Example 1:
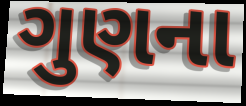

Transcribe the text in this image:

ગુણના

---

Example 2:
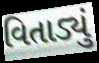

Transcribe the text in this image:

વિતાડ્યું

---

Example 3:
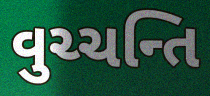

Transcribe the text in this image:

વુચ્ચન્તિ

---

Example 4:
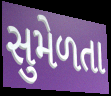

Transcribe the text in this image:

સુમેળતા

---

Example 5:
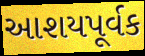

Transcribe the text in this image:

આશયપૂર્વક